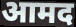
आमद